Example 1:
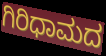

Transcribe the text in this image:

ಗಿರಿಧಾಮದ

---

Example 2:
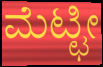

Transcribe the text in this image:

ಮೆಟ್ಟೀ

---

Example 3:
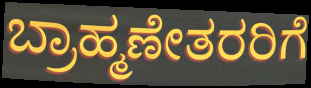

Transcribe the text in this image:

ಬ್ರಾಹ್ಮಣೇತರರಿಗೆ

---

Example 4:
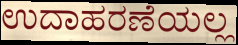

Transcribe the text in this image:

ಉದಾಹರಣೆಯಲ್ಲ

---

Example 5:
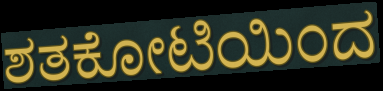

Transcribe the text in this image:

ಶತಕೋಟಿಯಿಂದ